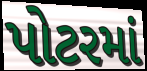
પોટરમાં